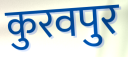
कुरवपुर